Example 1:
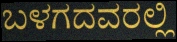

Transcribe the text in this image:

ಬಳಗದವರಲ್ಲಿ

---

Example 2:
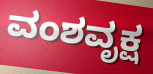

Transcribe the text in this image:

ವಂಶವೃಕ್ಷ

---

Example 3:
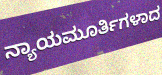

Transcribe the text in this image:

ನ್ಯಾಯಮೂರ್ತಿಗಳಾದ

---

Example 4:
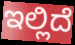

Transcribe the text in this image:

ಇಲ್ಲಿದೆ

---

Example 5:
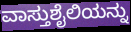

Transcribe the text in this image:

ವಾಸ್ತುಶೈಲಿಯನ್ನು